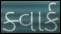
ક્વાર્ક